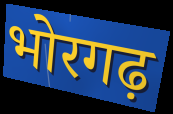
भोरगढ़